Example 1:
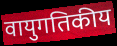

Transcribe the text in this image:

वायुगतिकीय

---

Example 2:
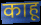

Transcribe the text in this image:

काहू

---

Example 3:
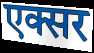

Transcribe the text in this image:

एक्सर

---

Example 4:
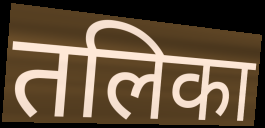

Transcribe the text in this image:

तलिका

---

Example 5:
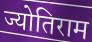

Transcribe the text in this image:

ज्योतिराम